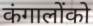
कंगालोंको